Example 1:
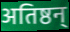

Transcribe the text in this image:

अतिष्ठन्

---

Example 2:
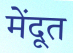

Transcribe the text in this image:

मेंदूत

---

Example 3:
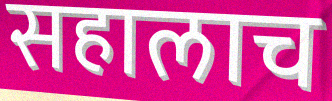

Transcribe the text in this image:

सहालाच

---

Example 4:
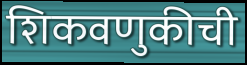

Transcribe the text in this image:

शिकवणुकीची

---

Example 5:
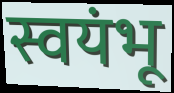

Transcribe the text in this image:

स्वयंभू